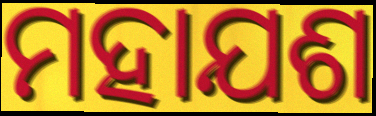
ମହାଯଶ